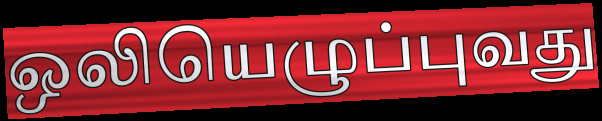
ஒலியெழுப்புவது